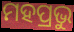
ମହପ୍ରଭୁ